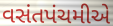
વસંતપંચમીએ